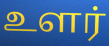
உளர்